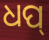
ଧପ୍